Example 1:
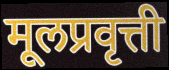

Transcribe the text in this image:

मूलप्रवृत्ती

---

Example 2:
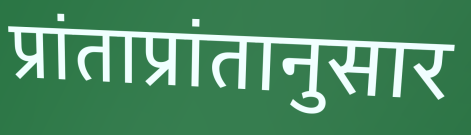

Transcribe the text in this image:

प्रांताप्रांतानुसार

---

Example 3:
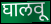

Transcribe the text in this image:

घालवू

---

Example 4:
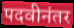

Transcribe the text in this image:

पदवीनंतर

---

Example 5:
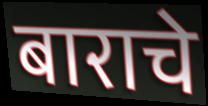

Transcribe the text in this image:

बाराचे